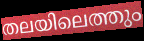
തലയിലെത്തും